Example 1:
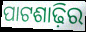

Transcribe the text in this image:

ପାଟଶାଢ଼ିର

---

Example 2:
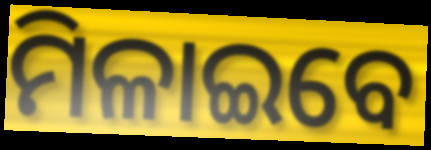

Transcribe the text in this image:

ମିଳାଇବେ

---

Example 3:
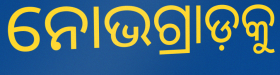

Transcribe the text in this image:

ନୋଭଗ୍ରାଡ଼କୁ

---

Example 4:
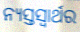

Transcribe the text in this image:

ନ୍ୟସ୍ତସ୍ଵାର୍ଥର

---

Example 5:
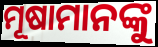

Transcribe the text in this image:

ମୂଷାମାନଙ୍କୁ